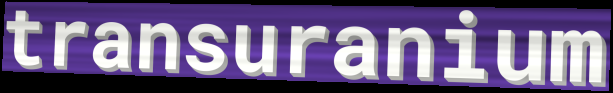
transuranium